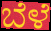
ಬೆಳೆ